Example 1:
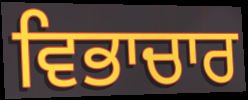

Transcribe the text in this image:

ਵਿਭਾਚਾਰ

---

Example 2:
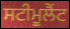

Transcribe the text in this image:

ਸਟੀਮੂਲੈਂਟ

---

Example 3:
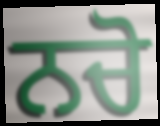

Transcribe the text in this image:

ਨਚੋ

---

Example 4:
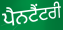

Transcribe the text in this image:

ਪੈਨਟੈਂਟਰੀ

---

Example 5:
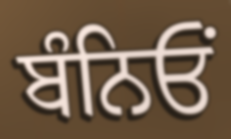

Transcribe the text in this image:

ਬੰਨਿਓਂ